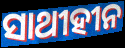
ସାଥୀହୀନ